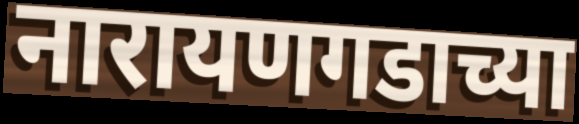
नारायणगडाच्या